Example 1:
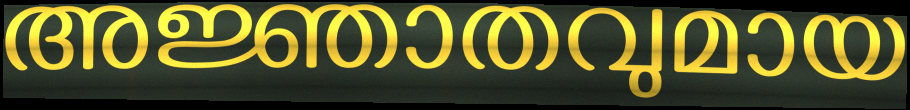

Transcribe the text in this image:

അജ്ഞാതവുമായ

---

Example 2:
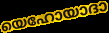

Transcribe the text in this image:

യെഹോയാദാ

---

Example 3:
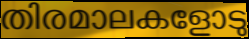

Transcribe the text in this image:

തിരമാലകളോടു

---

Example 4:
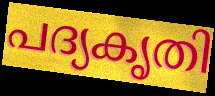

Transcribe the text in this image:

പദ്യകൃതി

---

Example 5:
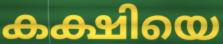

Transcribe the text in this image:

കക്ഷിയെ